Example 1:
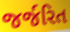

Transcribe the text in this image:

જર્જરિત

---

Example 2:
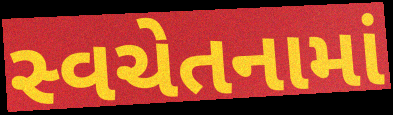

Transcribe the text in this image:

સ્વચેતનામાં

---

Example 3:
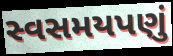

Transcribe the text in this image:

સ્વસમયપણું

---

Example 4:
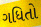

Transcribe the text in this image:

ગધિતો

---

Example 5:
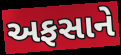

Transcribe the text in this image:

અફસાને